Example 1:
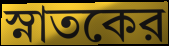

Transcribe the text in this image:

স্নাতকের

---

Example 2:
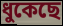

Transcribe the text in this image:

ধুকেছে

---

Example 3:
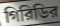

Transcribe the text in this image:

গিরিডির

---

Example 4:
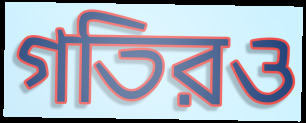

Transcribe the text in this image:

গতিরও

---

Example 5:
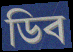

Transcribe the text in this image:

ডিব